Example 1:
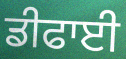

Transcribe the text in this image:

ਡੀਫਾਈ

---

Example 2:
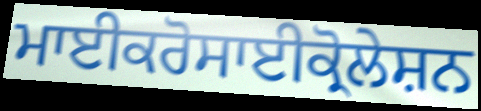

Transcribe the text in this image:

ਮਾਈਕਰੋਸਾਈਕ੍ਰੋਲੇਸ਼ਨ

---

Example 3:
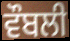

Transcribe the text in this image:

ਵੌਬਲੀ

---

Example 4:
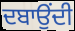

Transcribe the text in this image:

ਦਬਾਉਂਦੀ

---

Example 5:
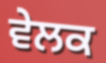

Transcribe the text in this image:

ਵੇਲਕ